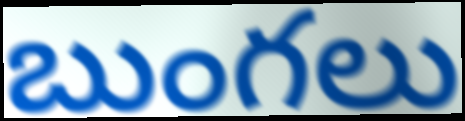
బుంగలు